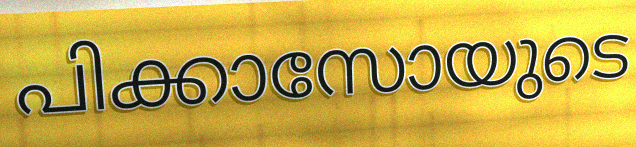
പിക്കാസോയുടെ